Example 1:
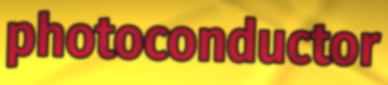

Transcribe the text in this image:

photoconductor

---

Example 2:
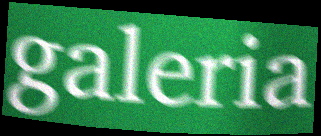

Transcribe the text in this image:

galeria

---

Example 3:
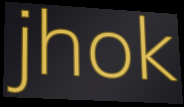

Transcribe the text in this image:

jhok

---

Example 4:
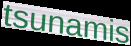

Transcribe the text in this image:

tsunamis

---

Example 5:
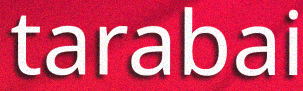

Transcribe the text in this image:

tarabai